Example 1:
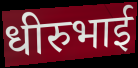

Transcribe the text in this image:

धीरुभाई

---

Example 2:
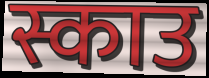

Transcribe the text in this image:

स्काउ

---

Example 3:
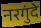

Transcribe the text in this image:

नरगुंदे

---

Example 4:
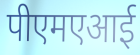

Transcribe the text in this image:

पीएमएआई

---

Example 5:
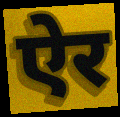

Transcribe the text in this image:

ऐर